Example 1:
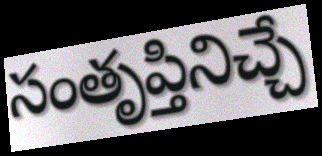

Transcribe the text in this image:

సంతృప్తినిచ్చే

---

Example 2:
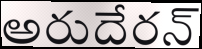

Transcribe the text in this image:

అరుదేరన్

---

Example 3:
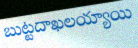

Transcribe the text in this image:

బుట్టదాఖలయ్యాయి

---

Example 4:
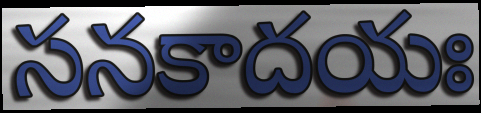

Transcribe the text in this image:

సనకాదయః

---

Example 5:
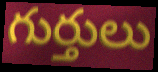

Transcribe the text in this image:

గుర్తులు